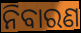
ନିବାରଣ